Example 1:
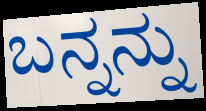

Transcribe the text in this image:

ಬನ್ನನ್ನು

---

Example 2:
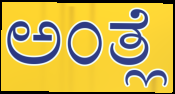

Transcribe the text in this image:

ಅಂತ್ಲೆ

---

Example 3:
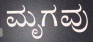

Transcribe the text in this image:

ಮೃಗವು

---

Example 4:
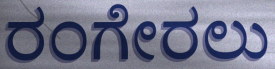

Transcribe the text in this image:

ರಂಗೇರಲು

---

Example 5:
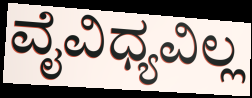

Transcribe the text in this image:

ವೈವಿಧ್ಯವಿಲ್ಲ